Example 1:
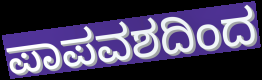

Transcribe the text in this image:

ಪಾಪವಶದಿಂದ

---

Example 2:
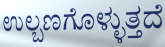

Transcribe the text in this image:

ಉಲ್ಬಣಗೊಳ್ಳುತ್ತದೆ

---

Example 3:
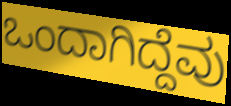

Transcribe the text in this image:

ಒಂದಾಗಿದ್ದೆವು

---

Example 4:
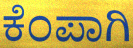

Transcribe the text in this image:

ಕೆಂಪಾಗಿ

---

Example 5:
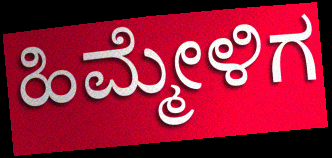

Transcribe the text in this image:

ಹಿಮ್ಮೇಳಿಗ